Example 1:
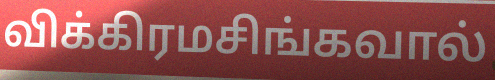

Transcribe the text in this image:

விக்கிரமசிங்கவால்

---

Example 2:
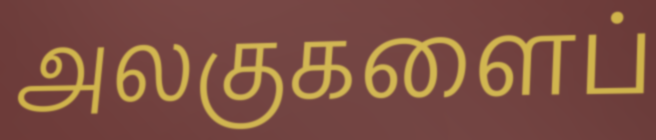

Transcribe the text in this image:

அலகுகளைப்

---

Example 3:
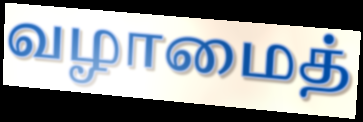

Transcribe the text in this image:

வழாமைத்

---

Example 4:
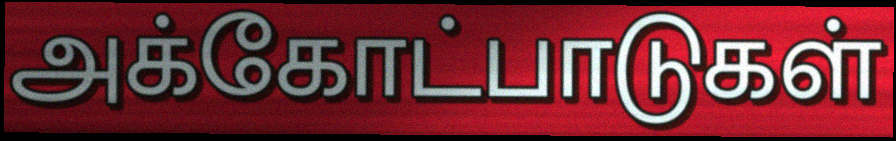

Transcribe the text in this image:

அக்கோட்பாடுகள்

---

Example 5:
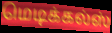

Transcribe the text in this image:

மெடிக்கல்ஸ்